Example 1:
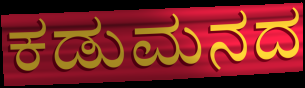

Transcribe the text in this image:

ಕಡುಮನದ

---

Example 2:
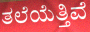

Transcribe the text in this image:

ತಲೆಯೆತ್ತಿವೆ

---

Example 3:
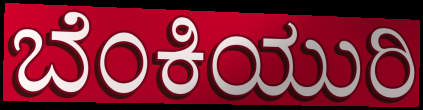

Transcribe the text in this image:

ಬೆಂಕಿಯುರಿ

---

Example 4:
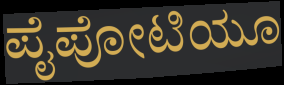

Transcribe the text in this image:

ಪೈಪೋಟಿಯೂ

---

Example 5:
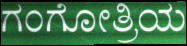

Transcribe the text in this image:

ಗಂಗೋತ್ರಿಯ